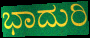
ಭಾದುರಿ